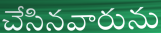
చేసినవారును